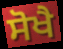
ਸੋਖੈ